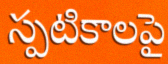
స్పటికాలపై